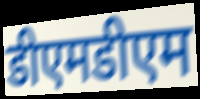
डीएमडीएम